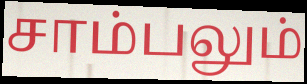
சாம்பலும்